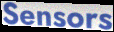
Sensors